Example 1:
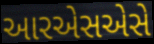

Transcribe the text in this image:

આરએસએસે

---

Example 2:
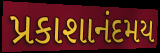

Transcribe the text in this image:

પ્રકાશાનંદમય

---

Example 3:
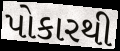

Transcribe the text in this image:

પોકારથી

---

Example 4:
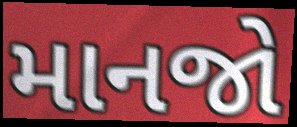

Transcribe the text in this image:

માનજો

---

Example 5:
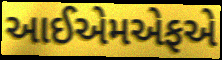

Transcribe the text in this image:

આઈએમએફએ